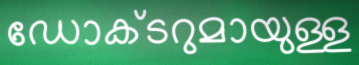
ഡോക്ടറുമായുള്ള